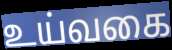
உய்வகை